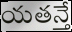
యతన్తే